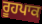
ਰੂਹਪਾਕ